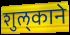
शुल्काने